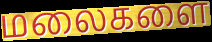
மலைகளை